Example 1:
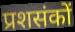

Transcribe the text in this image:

प्रशसंकों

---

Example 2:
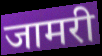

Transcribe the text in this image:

जामरी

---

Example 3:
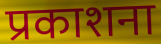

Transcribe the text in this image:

प्रकाशना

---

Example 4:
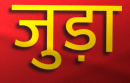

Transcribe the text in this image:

जुड़ा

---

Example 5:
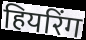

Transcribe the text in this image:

हियरिंग